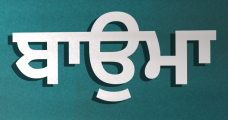
ਬਾਉਮਾ